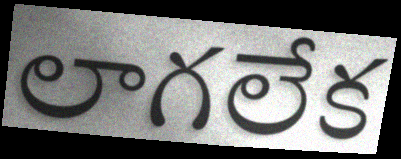
లాగలేక